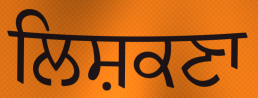
ਲਿਸ਼ਕਣਾ